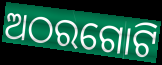
ଅଠରଗୋଟି